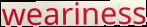
weariness